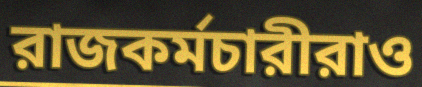
রাজকর্মচারীরাও